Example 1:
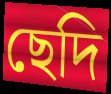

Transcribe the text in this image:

ছেদি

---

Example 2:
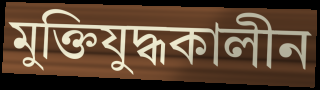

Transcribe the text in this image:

মুক্তিযুদ্ধকালীন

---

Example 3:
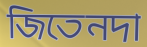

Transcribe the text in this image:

জিতেনদা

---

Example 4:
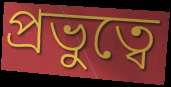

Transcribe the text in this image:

প্রভুত্বে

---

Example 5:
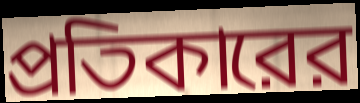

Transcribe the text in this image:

প্রতিকারের